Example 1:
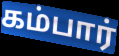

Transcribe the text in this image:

கம்பார்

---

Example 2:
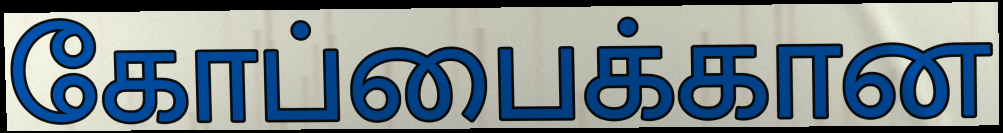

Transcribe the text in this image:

கோப்பைக்கான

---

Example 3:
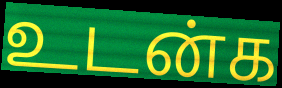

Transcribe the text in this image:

உடன்க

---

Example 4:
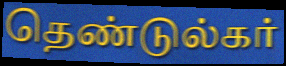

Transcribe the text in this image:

தெண்டுல்கர்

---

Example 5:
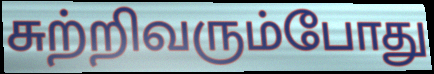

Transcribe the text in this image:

சுற்றிவரும்போது